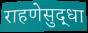
राहणेसुद्धा